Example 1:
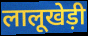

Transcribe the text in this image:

लालूखेड़ी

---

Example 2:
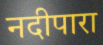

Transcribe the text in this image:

नदीपारा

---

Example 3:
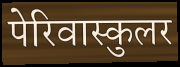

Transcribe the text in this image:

पेरिवास्कुलर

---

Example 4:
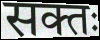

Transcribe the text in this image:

सक्तः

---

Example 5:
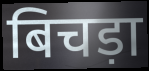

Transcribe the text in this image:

बिचड़ा